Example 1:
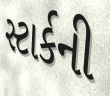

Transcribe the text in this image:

સ્ટાર્કની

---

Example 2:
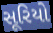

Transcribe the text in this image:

સૂરિયો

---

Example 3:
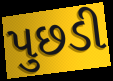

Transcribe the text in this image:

પુછડી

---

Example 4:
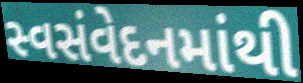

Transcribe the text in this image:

સ્વસંવેદનમાંથી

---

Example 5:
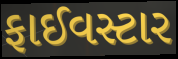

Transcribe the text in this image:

ફાઈવસ્ટાર